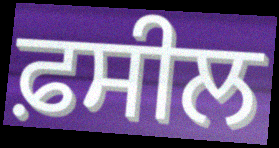
ਫ਼ਸੀਲ